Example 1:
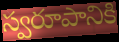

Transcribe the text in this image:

స్వరూపానికి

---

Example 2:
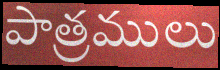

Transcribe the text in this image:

పాత్రములు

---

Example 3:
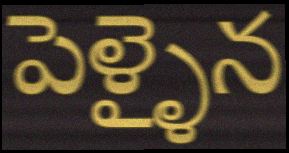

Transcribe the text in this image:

పెళ్ళైన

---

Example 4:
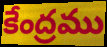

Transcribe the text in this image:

కేంద్రము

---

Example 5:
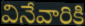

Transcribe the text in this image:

వినేవారికి